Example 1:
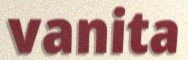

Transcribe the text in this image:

vanita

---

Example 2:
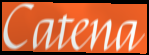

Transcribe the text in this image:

Catena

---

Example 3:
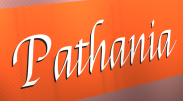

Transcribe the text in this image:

Pathania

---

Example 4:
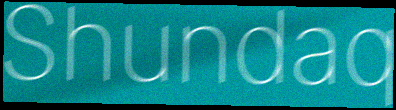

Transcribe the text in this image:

Shundaq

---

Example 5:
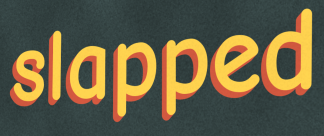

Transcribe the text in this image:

slapped